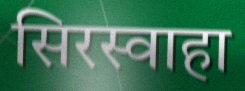
सिरस्वाहा